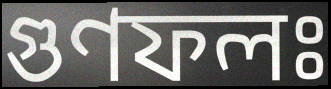
গুণফলঃ